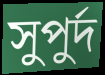
সুপুর্দ